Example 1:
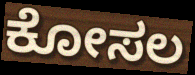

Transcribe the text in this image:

ಕೋಸಲ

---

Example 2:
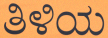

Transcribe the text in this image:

ತಿಳಿಯ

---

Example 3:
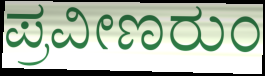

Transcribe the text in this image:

ಪ್ರವೀಣರುಂ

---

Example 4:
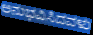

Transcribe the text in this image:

ಅನುಭವಿಸಿದವಳು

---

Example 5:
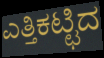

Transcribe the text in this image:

ಎತ್ತಿಕಟ್ಟಿದ